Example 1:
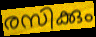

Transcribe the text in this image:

രസിക്കും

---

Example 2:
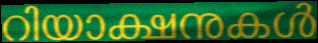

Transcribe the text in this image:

റിയാക്ഷനുകൾ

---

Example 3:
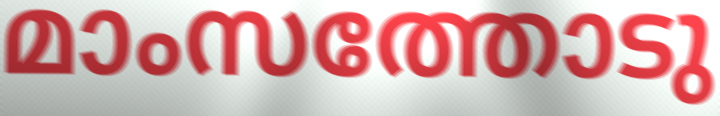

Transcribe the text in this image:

മാംസത്തോടു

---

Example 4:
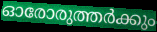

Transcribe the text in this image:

ഓരോരുത്തർക്കും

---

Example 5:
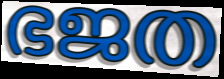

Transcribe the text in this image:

ഭജത